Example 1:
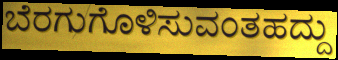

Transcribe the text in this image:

ಬೆರಗುಗೊಳಿಸುವಂತಹದ್ದು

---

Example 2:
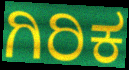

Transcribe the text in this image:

ಗಿರಿಕ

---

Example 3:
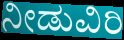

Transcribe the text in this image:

ನೀಡುವಿರಿ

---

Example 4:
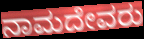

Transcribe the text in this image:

ನಾಮದೇವರು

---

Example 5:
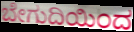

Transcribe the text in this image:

ಬೇಗುದಿಯಿಂದ